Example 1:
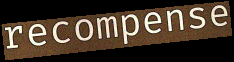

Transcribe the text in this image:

recompense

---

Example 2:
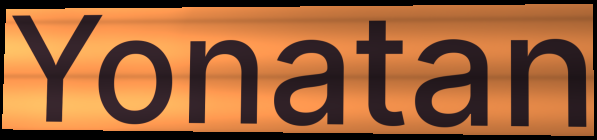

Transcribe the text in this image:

Yonatan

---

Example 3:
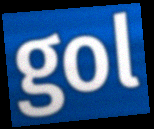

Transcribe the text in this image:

gol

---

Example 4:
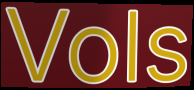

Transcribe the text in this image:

Vols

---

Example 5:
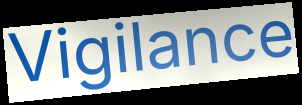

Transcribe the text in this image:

Vigilance